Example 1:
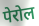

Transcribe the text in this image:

पेरोल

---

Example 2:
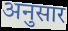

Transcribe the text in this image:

अनुसार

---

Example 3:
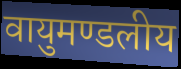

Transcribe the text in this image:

वायुमण्डलीय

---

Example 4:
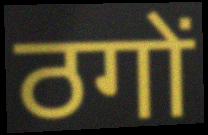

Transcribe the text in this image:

ठगों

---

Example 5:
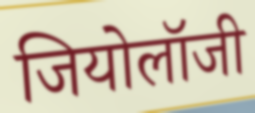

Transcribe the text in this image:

जियोलॉजी